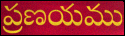
ప్రణయము